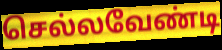
செல்லவேண்டி